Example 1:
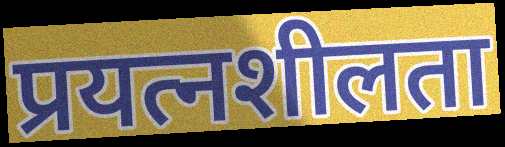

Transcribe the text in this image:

प्रयत्नशीलता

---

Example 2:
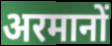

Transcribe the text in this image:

अरमानों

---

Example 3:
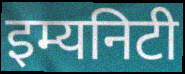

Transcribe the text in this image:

इम्यनिटी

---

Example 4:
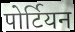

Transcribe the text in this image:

पोर्टियन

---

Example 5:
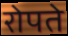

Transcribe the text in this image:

रोपते